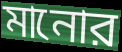
মানোর